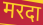
मरदा